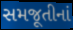
સમજૂતીનાં